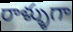
రాళ్ళుగా